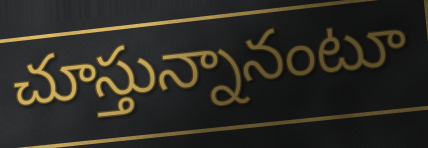
చూస్తున్నానంటూ